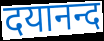
दयानन्द